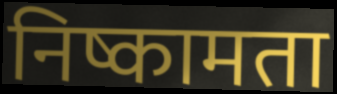
निष्कामता